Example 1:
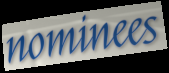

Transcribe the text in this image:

nominees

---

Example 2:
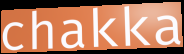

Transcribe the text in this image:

chakka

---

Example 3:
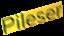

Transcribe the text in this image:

Pileser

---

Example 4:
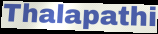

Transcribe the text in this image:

Thalapathi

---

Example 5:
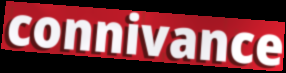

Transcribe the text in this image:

connivance